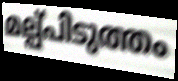
മല്പ്പിടുത്തം